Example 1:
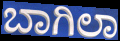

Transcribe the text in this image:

ಬಾಗಿಲಾ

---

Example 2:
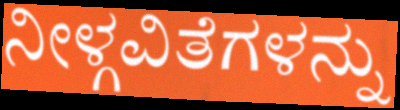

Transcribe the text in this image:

ನೀಳ್ಗವಿತೆಗಳನ್ನು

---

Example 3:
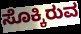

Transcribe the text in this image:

ಸೊಕ್ಕಿರುವ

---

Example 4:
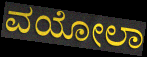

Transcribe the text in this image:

ವಯೋಲಾ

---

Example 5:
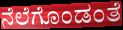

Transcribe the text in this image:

ನೆಲೆಗೊಂಡಂತೆ